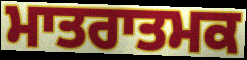
ਮਾਤਰਾਤਮਕ